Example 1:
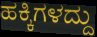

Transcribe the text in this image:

ಹಕ್ಕಿಗಳದ್ದು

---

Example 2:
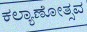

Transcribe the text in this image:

ಕಲ್ಯಾಣೋತ್ಸವ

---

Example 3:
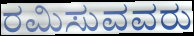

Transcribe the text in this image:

ರಮಿಸುವವರು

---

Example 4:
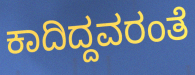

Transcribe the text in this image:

ಕಾದಿದ್ದವರಂತೆ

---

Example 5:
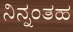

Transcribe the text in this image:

ನಿನ್ನಂತಹ